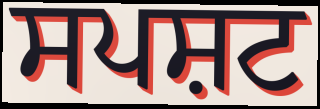
ਸਪਸ਼ਟ